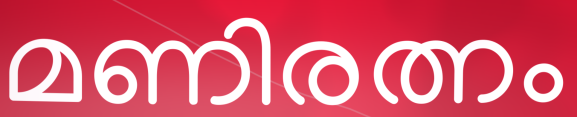
മണിരത്നം